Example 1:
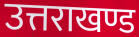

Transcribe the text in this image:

उत्तराखण्ड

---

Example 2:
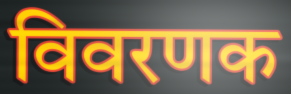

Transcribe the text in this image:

विवरणक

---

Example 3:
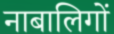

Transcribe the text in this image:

नाबालिगों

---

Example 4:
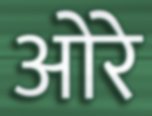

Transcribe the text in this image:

ओरे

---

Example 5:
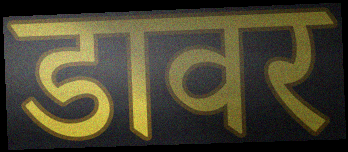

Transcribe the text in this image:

डावर